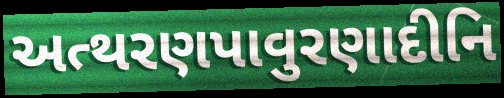
અત્થરણપાવુરણાદીનિ